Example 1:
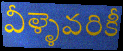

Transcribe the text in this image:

వీళ్ళెవరికీ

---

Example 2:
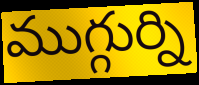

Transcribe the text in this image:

ముగ్గుర్ని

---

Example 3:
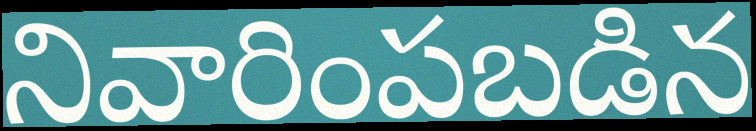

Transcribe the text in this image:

నివారింపబడిన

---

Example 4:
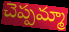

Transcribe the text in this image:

చెప్పమ్మా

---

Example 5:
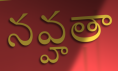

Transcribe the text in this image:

నవ్హతా